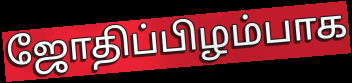
ஜோதிப்பிழம்பாக